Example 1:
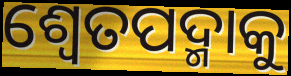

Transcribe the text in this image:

ଶ୍ୱେତପଦ୍ମାକୁ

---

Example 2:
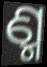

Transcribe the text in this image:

ଣ୍ମ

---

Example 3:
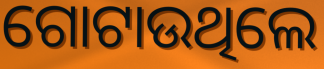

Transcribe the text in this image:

ଗୋଟାଉଥିଲେ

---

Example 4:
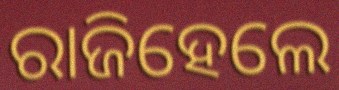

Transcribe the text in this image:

ରାଜିହେଲେ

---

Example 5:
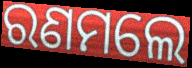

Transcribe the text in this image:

ରଣମଲେ